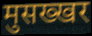
मुसख्खर